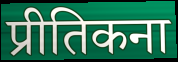
प्रीतिकना